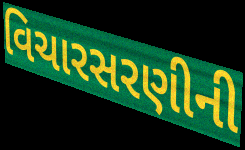
વિચારસરણીની